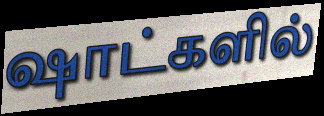
ஷாட்களில்